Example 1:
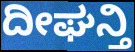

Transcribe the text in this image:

ದೀಘನ್ತಿ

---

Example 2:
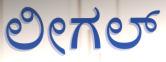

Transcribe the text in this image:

ಲೀಗಲ್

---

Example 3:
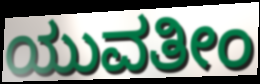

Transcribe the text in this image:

ಯುವತೀಂ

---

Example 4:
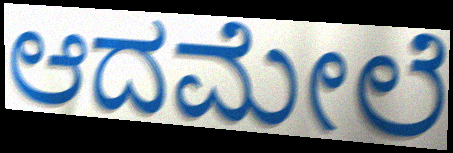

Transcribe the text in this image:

ಆದಮೇಲೆ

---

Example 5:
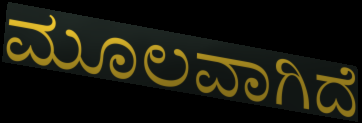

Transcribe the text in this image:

ಮೂಲವಾಗಿದೆ